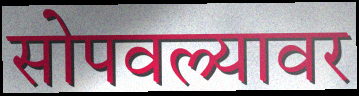
सोपवल्यावर